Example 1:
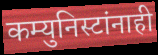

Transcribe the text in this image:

कम्युनिस्टांनाही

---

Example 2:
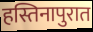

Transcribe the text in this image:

हस्तिनापुरात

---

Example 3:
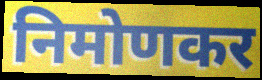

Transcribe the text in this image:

निमोणकर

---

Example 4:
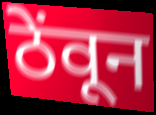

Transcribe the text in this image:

ठेंवून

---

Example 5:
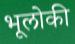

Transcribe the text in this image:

भूलोकी